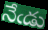
నేఁడు